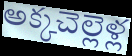
అక్కచెల్లెళ్ల